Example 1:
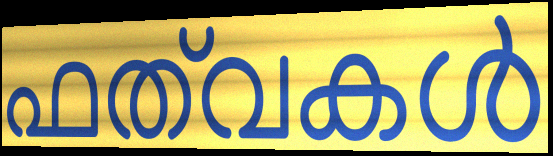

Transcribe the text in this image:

ഫത്‌വകൾ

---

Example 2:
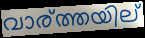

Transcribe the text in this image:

വാര്ത്തയില്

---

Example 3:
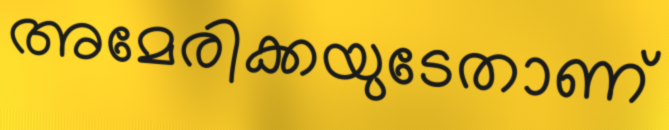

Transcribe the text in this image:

അമേരിക്കയുടേതാണ്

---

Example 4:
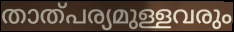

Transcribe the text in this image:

താത്പര്യമുള്ളവരും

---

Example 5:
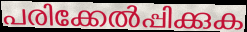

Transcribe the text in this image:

പരിക്കേൽപ്പിക്കുക